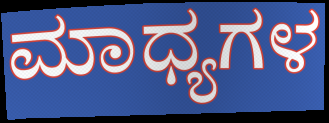
ಮಾಧ್ಯಗಳ